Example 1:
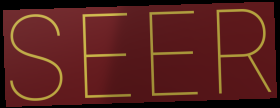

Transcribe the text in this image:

SEER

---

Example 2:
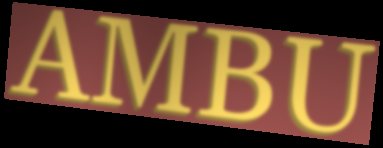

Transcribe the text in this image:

AMBU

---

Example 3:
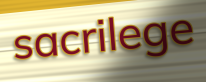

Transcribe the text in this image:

sacrilege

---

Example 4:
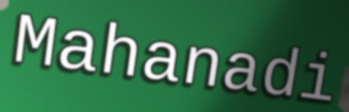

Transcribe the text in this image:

Mahanadi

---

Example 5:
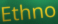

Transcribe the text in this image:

Ethno